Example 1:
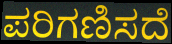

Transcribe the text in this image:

ಪರಿಗಣಿಸದೆ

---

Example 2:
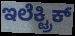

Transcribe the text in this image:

ಇಲೆಕ್ಟ್ರಿಕ್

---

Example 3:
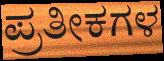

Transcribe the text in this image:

ಪ್ರತೀಕಗಳ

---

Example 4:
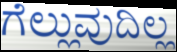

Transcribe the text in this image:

ಗೆಲ್ಲುವುದಿಲ್ಲ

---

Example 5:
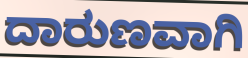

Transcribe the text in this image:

ದಾರುಣವಾಗಿ